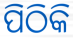
ପିଠିକି